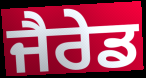
ਜੈਰੇਡ